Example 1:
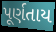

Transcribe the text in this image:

પૂર્ણતાય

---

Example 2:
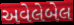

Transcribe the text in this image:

અવેલેબેલ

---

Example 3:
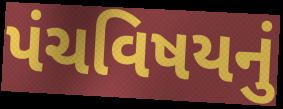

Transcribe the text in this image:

પંચવિષયનું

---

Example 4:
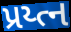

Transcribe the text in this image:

પ્રય્ત્ન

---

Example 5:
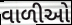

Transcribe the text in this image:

વાળીઓ